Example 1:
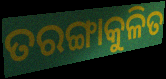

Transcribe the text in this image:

ତରଙ୍ଗାକୁଳିତ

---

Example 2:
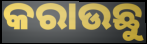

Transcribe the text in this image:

କରାଉଛୁ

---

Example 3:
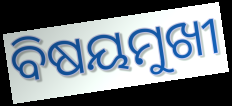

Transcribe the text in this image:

ବିଷୟମୁଖୀ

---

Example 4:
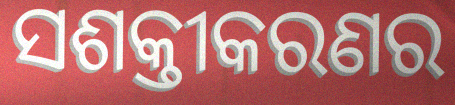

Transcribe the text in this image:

ସଶକ୍ତୀକରଣର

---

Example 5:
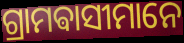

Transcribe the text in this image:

ଗ୍ରାମଵାସୀମାନେ